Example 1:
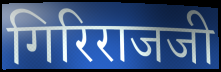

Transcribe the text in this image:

गिरिराजजी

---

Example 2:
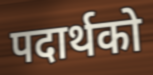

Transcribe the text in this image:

पदार्थको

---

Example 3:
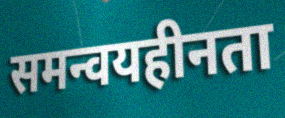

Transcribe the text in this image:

समन्वयहीनता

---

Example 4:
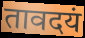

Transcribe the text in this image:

तावदयं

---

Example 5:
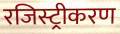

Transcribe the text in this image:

रजिस्‍ट्रीकरण